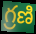
గ్రణి